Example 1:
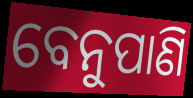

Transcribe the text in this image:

ବେନୁପାଣି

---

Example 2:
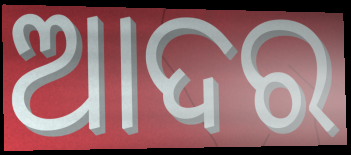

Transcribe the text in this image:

ଆଦର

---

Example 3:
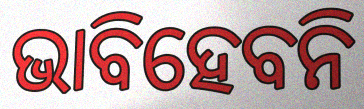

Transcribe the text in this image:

ଭାବିହେବନି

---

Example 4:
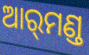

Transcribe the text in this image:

ଆର୍‌ମଣ୍ଡ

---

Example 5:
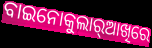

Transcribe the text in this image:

ବାଇନୋକୁଲାର୍‌ଆଖିରେ